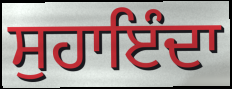
ਸੁਹਾਇੰਦਾ